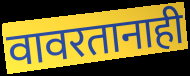
वावरतानाही